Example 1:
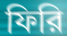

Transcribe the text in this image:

ফিরি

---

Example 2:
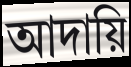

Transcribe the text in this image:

আদায়ি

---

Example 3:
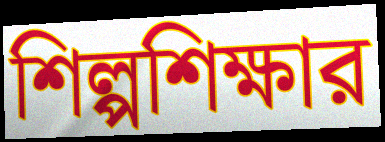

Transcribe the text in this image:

শিল্পশিক্ষার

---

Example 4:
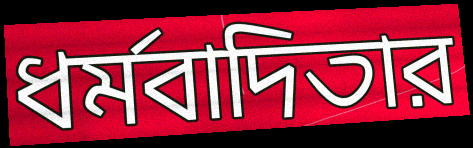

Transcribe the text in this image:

ধর্মবাদিতার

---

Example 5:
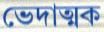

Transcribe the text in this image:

ভেদাত্মক